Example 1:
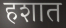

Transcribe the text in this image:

हशात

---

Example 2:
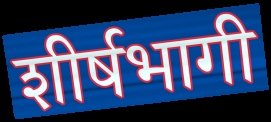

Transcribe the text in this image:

शीर्षभागी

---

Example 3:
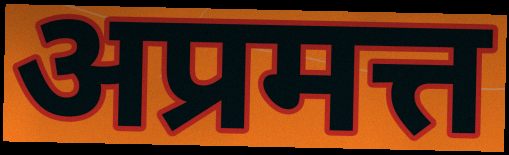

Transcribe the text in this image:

अप्रमत्त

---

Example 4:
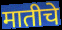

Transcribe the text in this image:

मातीचे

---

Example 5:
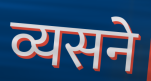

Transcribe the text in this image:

व्यसने